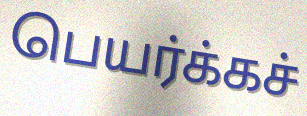
பெயர்க்கச்